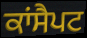
ਕਾਂਸੈਪਟ